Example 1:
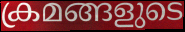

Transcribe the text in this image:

ക്രമങ്ങളുടെ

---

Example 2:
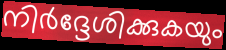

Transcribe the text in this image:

നിർദ്ദേശിക്കുകയും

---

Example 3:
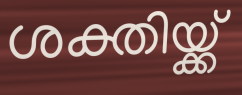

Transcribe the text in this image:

ശക്തിയ്ക്ക്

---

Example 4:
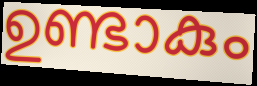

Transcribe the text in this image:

ഉണ്ടാകും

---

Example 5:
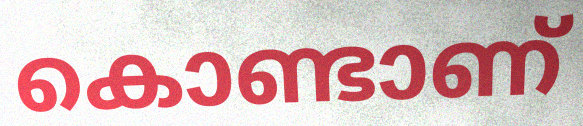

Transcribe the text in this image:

കൊണ്ടാണ്